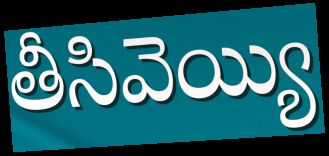
తీసివెయ్యి